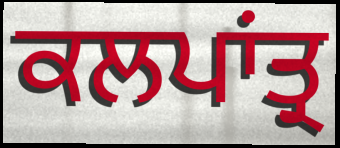
ਕਲਪਾਂਤ੍ਰ